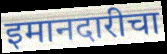
इमानदारीचा